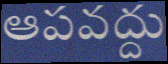
ఆపవద్దు